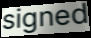
signed